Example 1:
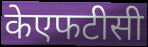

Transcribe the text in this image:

केएफटीसी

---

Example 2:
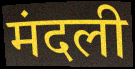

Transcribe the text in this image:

मंदली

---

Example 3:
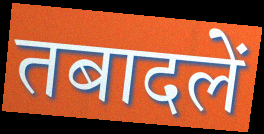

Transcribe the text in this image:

तबादलें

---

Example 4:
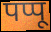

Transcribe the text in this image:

पप्‍पू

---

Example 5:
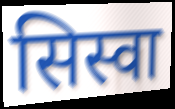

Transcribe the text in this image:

सिस्वा